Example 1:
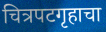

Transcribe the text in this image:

चित्रपटगृहाचा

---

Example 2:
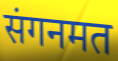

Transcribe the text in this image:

संगनमत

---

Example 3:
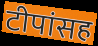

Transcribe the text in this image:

टीपांसह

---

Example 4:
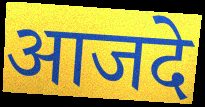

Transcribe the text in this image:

आजदे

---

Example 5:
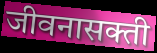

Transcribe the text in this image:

जीवनासक्ती